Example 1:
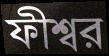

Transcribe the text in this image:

ফীশ্বর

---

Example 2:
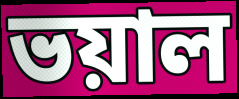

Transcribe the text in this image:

ভয়াল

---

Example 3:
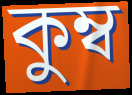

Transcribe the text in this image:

কুম্ব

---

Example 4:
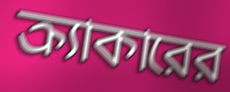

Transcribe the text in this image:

ক্র্যাকারের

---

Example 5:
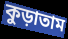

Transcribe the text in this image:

কুড়াতাম